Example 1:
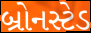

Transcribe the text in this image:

બ્રોનસ્ટેડ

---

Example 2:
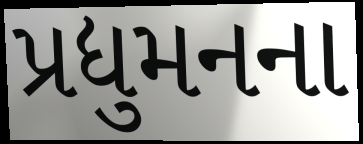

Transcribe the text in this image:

પ્રદ્યુમનના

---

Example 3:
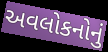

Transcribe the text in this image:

અવલોકનોનું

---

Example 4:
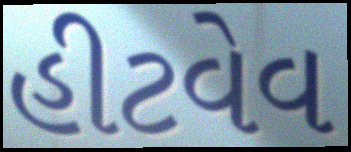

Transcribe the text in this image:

હીટવેવ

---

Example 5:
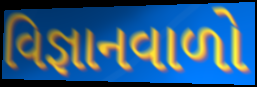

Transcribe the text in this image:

વિજ્ઞાનવાળો